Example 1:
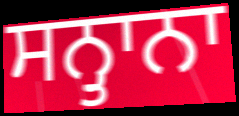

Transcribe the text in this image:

ਸਨ੍ਤਾਨਾ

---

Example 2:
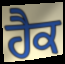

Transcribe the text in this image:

ਹੈਕ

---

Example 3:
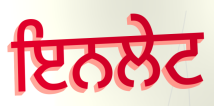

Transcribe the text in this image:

ਇਨਲੇਟ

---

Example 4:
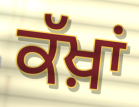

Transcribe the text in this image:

ਕੱਖ਼ਾਂ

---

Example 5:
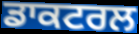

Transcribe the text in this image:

ਡਾਕਟਰਲ